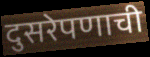
दुसरेपणाची